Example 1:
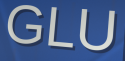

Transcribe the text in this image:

GLU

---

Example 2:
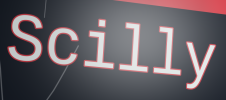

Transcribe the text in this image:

Scilly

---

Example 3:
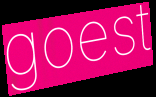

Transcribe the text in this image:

goest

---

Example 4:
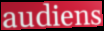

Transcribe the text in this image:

audiens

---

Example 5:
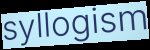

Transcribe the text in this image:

syllogism